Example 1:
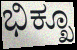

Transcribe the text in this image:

ಭಿಕ್ಖೂ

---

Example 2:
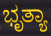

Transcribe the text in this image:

ಭೃತ್ಯಾ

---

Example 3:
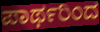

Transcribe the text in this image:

ಪಾರ್ಥರಿಂದ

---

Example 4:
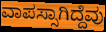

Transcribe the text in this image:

ವಾಪಸ್ಸಾಗಿದ್ದೆವು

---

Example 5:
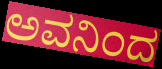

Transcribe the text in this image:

ಅವನಿಂದ